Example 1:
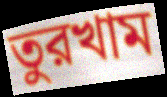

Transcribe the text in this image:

তুরখাম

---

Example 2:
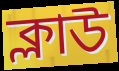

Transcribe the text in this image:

ক্লাউ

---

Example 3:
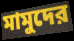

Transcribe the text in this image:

মামুদের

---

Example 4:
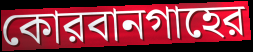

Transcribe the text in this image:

কোরবানগাহের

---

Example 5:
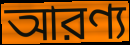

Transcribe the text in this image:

আরণ্য